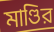
মাণ্ডির